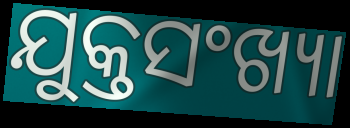
ଯୁକ୍ତସଂଖ୍ୟା